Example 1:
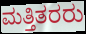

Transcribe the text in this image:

ಮತ್ತಿತರರು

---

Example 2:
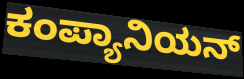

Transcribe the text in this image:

ಕಂಪ್ಯಾನಿಯನ್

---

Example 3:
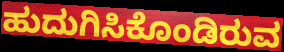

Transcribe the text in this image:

ಹುದುಗಿಸಿಕೊಂಡಿರುವ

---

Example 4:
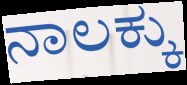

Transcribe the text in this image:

ನಾಲಕ್ಕು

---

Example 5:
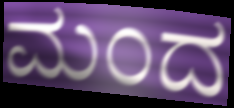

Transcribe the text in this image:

ಮಂದ